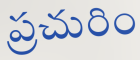
ప్రచురిం